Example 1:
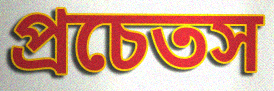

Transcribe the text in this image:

প্রচেতস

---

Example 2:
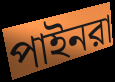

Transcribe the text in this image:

পাইনরা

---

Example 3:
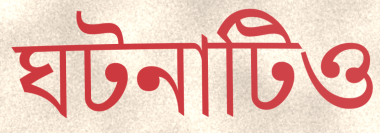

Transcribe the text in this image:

ঘটনাটিও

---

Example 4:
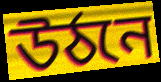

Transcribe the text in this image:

উঠনে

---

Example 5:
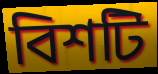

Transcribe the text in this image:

বিশটি